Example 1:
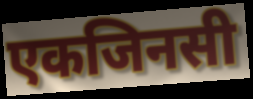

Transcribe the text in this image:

एकजिनसी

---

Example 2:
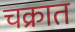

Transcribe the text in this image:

चक्रात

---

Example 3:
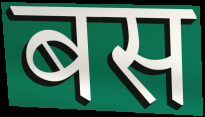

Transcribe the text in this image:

बस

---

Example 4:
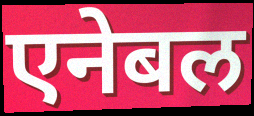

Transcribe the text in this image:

एनेबल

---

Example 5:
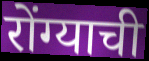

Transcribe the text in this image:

रोंग्याची